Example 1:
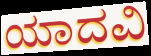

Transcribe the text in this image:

ಯಾದವಿ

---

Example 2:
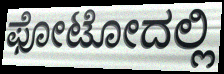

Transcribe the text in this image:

ಫೋಟೋದಲ್ಲಿ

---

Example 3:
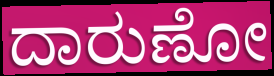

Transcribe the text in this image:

ದಾರುಣೋ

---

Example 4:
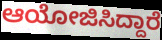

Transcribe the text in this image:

ಆಯೋಜಿಸಿದ್ದಾರೆ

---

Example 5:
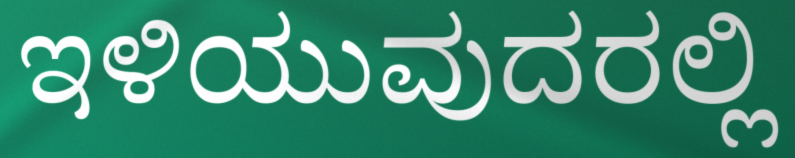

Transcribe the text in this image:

ಇಳಿಯುವುದರಲ್ಲಿ